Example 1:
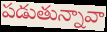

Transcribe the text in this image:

పడుతున్నావా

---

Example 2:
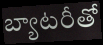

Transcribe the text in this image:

బ్యాటరీతో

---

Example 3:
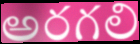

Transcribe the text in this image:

అరగలి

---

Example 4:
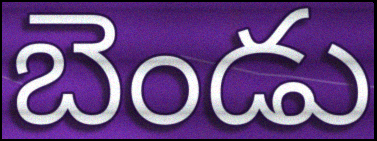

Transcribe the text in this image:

బెండు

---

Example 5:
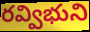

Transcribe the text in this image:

రవ్విభుని